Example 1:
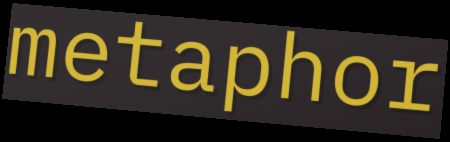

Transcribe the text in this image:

metaphor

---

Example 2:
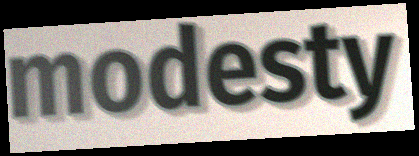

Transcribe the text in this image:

modesty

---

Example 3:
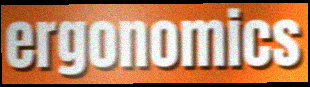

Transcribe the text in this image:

ergonomics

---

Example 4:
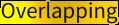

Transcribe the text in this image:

Overlapping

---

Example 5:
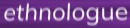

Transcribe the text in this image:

ethnologue